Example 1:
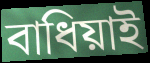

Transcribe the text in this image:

বাধিয়াই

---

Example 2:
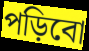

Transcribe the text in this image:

পড়িবো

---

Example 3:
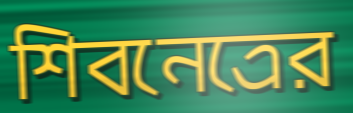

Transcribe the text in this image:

শিবনেত্রের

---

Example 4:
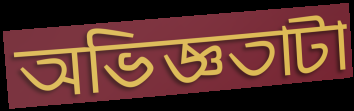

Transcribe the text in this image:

অভিজ্ঞতাটা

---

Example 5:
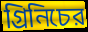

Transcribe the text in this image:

গ্রিনিচের